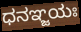
ಧನಞ್ಜಯಃ